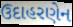
ઉદાહરણેન